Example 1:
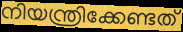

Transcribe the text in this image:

നിയന്ത്രിക്കേണ്ടത്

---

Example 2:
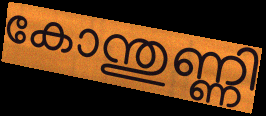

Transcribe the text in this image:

കോന്തുണ്ണി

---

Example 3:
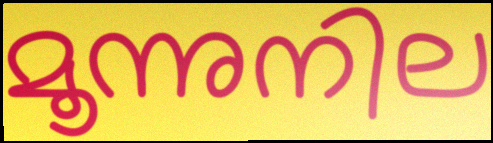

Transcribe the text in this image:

മൂന്നുനില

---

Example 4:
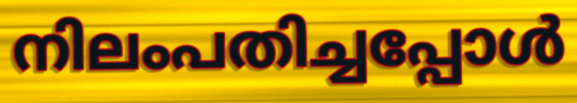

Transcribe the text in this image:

നിലംപതിച്ചപ്പോൾ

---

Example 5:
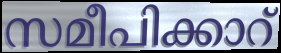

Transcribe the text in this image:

സമീപിക്കാറ്